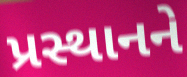
પ્રસ્થાનને